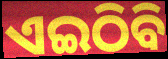
ଏଇଠିବି